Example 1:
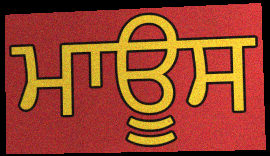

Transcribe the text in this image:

ਮਾਊਸ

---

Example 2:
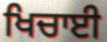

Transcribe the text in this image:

ਖਿਚਾਈ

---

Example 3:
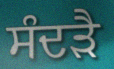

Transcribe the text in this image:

ਸੰਦੜੈ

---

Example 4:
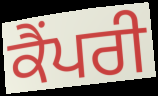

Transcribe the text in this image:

ਕੈਂਪਰੀ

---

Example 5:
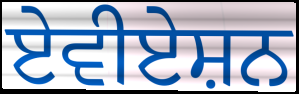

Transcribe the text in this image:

ਏਵੀਏਸ਼ਨ